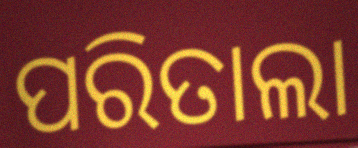
ପରିତାଲା